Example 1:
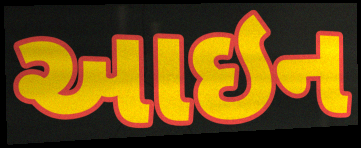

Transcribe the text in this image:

આઇન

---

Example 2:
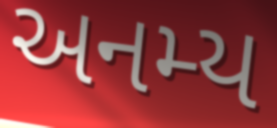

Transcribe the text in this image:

અનમ્ય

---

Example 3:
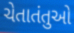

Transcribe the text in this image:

ચેતાતંતુઓ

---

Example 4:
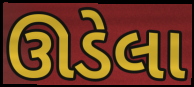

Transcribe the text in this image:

ઊડેલા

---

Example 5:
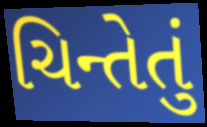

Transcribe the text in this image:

ચિન્તેતું